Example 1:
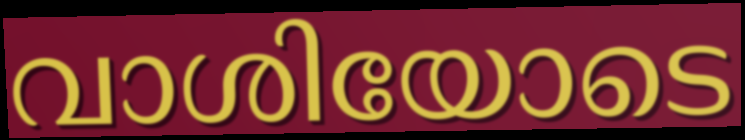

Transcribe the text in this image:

വാശിയോടെ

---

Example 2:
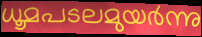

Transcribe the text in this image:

ധൂമപടലമുയർന്നു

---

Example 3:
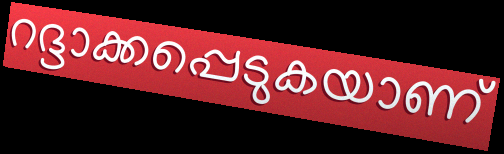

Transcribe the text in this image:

റദ്ദാക്കപ്പെടുകയാണ്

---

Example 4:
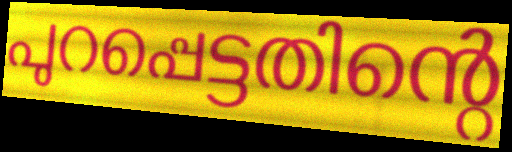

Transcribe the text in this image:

പുറപ്പെട്ടതിന്റെ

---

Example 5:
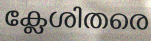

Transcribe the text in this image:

ക്ലേശിതരെ